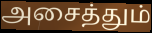
அசைத்தும்